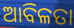
ଆବିଳତା